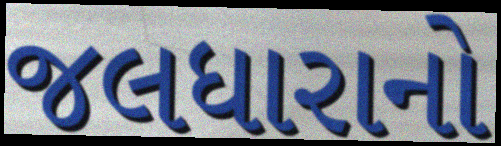
જલધારાનો